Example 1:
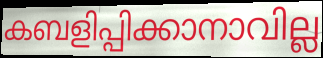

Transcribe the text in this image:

കബളിപ്പിക്കാനാവില്ല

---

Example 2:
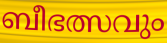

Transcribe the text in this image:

ബീഭത്സവും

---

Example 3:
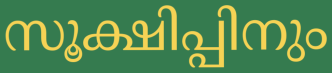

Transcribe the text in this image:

സൂക്ഷിപ്പിനും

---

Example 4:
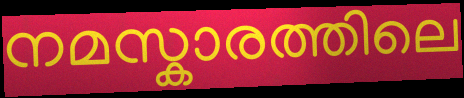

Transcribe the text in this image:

നമസ്കാരത്തിലെ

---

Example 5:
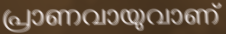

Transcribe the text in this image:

പ്രാണവായുവാണ്